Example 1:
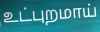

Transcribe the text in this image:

உட்புறமாய்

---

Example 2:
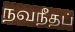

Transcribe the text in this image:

நவநீதப்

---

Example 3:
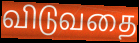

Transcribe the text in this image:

விடுவதை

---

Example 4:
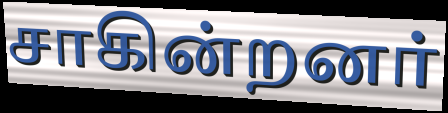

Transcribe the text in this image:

சாகின்றனர்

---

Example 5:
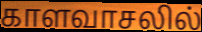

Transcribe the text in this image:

காளவாசலில்